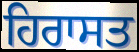
ਹਿਰਾਸਤ